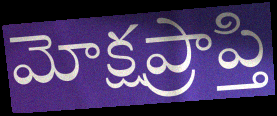
మోక్షప్రాప్తి